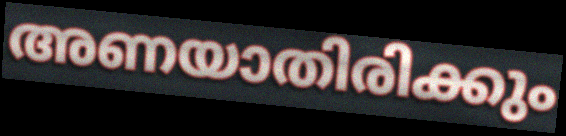
അണയാതിരിക്കും